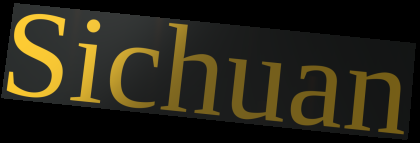
Sichuan